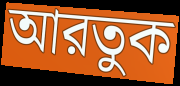
আরতুক